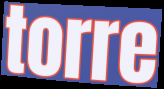
torre